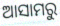
ଆସାମରୁ